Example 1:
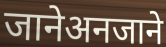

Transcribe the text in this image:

जानेअनजाने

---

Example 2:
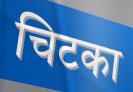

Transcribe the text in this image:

चिटका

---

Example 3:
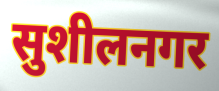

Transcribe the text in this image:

सुशीलनगर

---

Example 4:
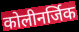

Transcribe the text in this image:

कोलीनर्जिक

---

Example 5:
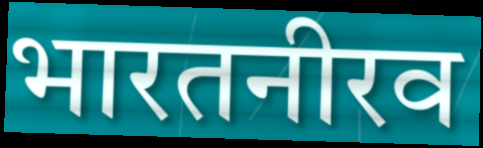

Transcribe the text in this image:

भारतनीरव